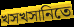
খসখসানিতে